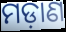
ମଡ଼ାଣ